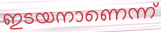
ഇടയനാണെന്ന്